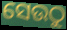
ସେଉଠୁ